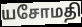
யசோமதி